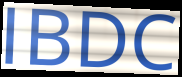
IBDC